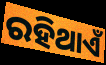
ରହିଥାଏଁ